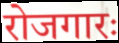
रोजगारः